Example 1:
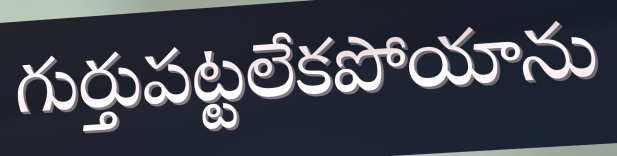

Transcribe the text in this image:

గుర్తుపట్టలేకపోయాను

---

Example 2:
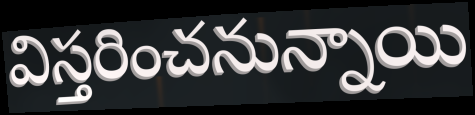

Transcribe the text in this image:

విస్తరించనున్నాయి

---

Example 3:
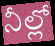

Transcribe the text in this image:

నీల్లో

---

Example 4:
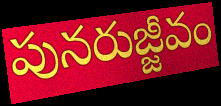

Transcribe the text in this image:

పునరుజ్జీవం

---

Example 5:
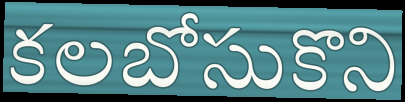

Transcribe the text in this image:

కలబోసుకొని